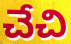
చేచి